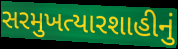
સરમુખત્યારશાહીનું